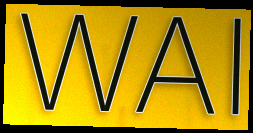
WAI